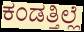
ಕಂಡತ್ತಿಲ್ಲೆ